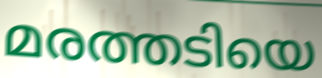
മരത്തടിയെ